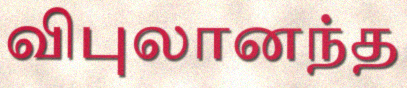
விபுலானந்த